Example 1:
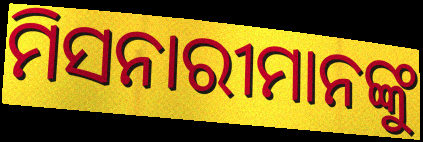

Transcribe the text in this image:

ମିସନାରୀମାନଙ୍କୁ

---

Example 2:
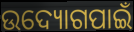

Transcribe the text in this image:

ଉଦ୍ୟୋଗପାଇଁ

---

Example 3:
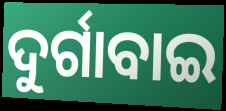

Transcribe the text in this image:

ଦୁର୍ଗାବାଇ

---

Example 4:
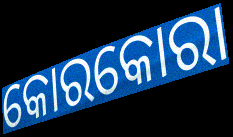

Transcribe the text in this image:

କୋରକୋରା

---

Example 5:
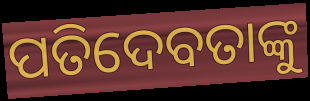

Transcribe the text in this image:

ପତିଦେବତାଙ୍କୁ